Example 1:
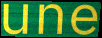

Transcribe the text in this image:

une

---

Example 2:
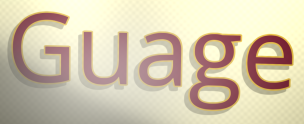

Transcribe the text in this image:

Guage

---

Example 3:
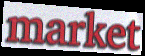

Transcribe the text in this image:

market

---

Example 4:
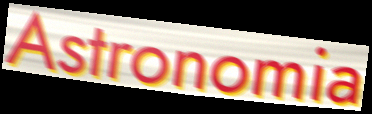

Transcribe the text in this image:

Astronomia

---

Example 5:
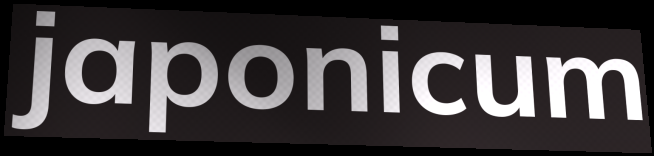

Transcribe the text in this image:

japonicum